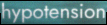
hypotension